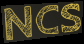
NCS